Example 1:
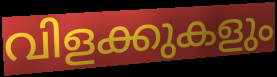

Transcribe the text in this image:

വിളക്കുകളും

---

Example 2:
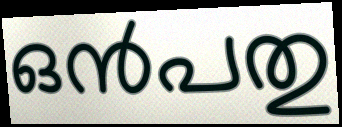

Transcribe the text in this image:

ഒൻപതു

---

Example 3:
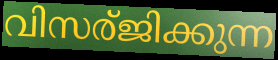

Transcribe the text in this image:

വിസര്ജിക്കുന്ന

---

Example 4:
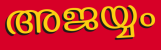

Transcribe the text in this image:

അജയ്യം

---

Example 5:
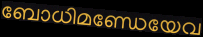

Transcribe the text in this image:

ബോധിമണ്ഡേയേവ